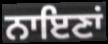
ਨਾਇਣਾਂ